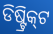
ଡିଷ୍ଟ୍ରିକ୍‌ଟ